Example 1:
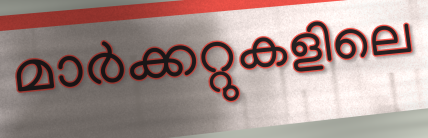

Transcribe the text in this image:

മാർക്കറ്റുകളിലെ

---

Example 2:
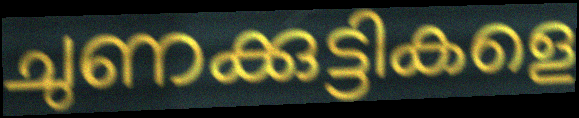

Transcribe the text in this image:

ചുണക്കുട്ടികളെ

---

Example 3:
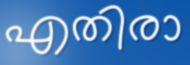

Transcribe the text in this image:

എതിരാ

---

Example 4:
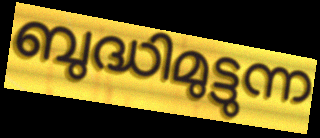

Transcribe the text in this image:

ബുദ്ധിമുട്ടുന്ന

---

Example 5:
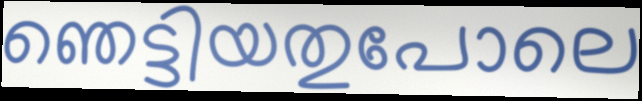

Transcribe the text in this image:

ഞെട്ടിയതുപോലെ